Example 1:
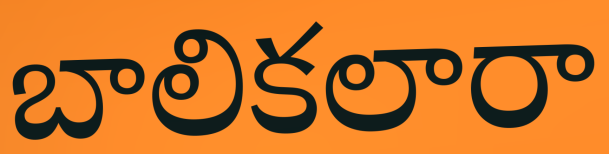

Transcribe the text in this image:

బాలికలారా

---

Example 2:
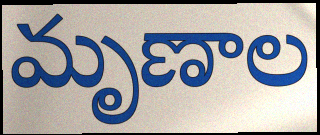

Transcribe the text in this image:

మృణాల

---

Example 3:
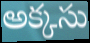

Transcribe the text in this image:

అక్కసు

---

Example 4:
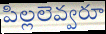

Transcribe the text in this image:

పిల్లలెవ్వరూ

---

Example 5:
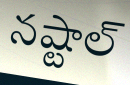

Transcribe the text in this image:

నష్టాల్